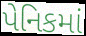
પેનિકમાં